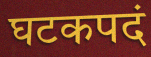
घटकपदं